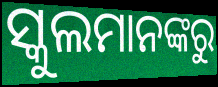
ସ୍କୁଲମାନଙ୍କରୁ